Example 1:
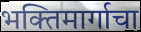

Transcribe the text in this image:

भक्तिमार्गाचा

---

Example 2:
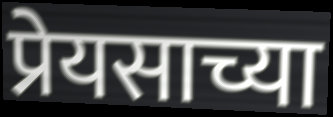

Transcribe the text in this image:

प्रेयसाच्या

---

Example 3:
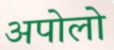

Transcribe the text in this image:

अपोलो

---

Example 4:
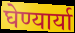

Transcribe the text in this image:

घेण्यार्या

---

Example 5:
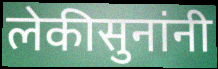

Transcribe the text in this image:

लेकीसुनांनी